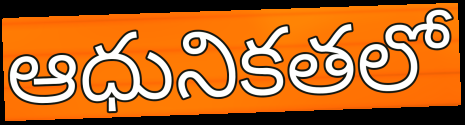
ఆధునికతలో